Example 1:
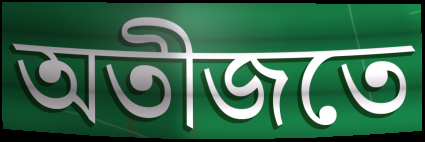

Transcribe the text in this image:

অতীজতে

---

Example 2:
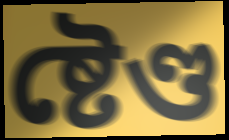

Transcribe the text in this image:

ষ্টেণ্ড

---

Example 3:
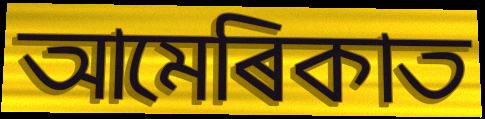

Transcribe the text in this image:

আমেৰিকাত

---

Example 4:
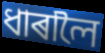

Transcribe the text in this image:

ধাৰালৈ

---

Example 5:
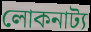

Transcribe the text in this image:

লোকনাট্য